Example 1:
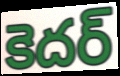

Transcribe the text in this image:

కెదర్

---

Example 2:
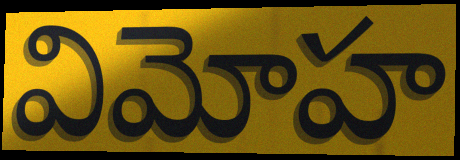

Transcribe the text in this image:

విమోహ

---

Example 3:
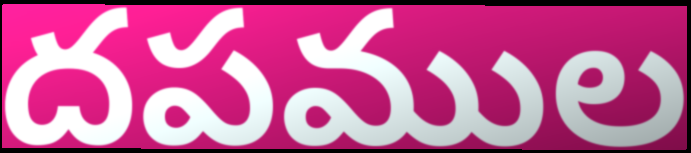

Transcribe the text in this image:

దపముల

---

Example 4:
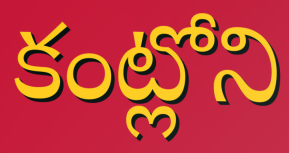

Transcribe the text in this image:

కంట్లోని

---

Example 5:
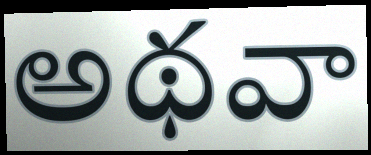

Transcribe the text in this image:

అథవా